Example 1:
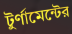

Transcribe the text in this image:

টুর্ণামেন্টের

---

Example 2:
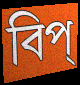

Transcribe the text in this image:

বিপ্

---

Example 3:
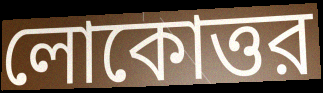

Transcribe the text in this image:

লোকোত্তর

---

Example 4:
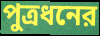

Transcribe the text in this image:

পুত্রধনের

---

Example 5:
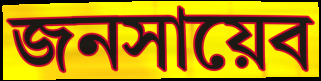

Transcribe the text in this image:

জনসায়েব